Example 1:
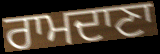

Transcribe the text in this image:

ਰਾਮਦਾਣਾ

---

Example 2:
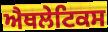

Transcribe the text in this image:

ਐਥਲੇਟਿਕਸ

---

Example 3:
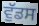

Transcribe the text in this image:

ਵੁੱਡਸ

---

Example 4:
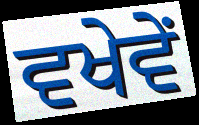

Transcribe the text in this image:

ਵਖੇਵੇਂ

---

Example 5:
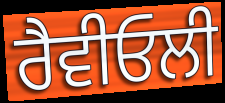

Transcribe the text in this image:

ਰੈਵੀਓਲੀ